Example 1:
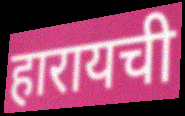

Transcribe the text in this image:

हारायची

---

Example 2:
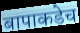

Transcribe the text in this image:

बापाकडेच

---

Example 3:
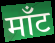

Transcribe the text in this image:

माँट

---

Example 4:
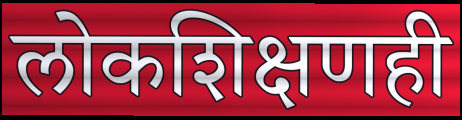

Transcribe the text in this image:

लोकशिक्षणही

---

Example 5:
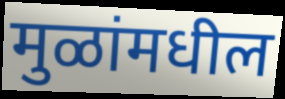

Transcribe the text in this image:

मुळांमधील